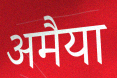
अमैया